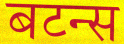
बटन्स